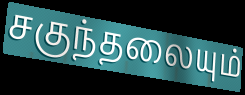
சகுந்தலையும்